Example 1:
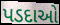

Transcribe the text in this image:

પડદાઓ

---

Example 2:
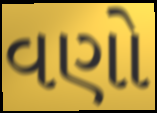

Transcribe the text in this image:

વણો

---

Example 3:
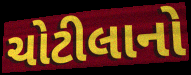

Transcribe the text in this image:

ચોટીલાનો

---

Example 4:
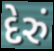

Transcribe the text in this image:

દેરું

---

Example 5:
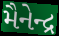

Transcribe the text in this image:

મૈનેન્દ્ર